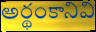
అర్థంకానివి